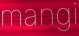
mangi